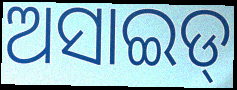
ଅସାଇଡ୍